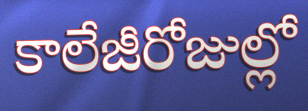
కాలేజీరోజుల్లో